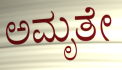
ಅಮೃತೇ